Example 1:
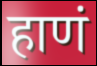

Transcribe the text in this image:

हाणं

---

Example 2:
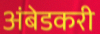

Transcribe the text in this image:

अंबेडकरी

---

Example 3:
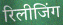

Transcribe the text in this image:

रिलीजिंग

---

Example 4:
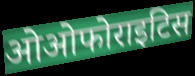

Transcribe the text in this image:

ओओफोराइटिस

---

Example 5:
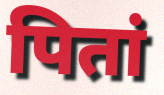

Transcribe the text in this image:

पितां